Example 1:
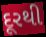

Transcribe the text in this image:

દૂરથી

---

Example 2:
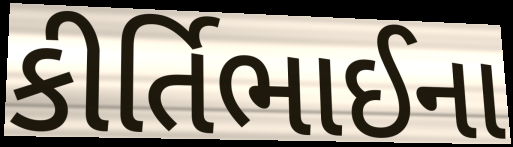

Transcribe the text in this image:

કીર્તિભાઈના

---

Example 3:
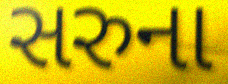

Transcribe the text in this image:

સરુના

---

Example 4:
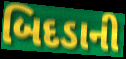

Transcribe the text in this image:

બિદડાની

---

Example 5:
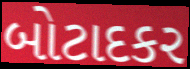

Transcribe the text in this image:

બોટાદકર